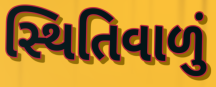
સ્થિતિવાળું